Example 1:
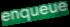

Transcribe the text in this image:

enqueue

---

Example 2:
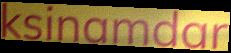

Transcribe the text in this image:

ksinamdar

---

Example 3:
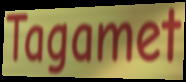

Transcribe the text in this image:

Tagamet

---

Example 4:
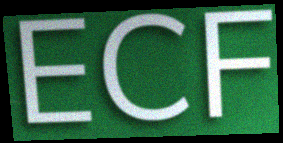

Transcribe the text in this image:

ECF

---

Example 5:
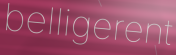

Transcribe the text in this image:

belligerent